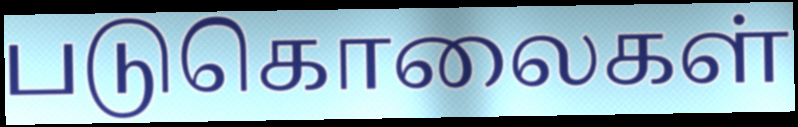
படுகொலைகள்